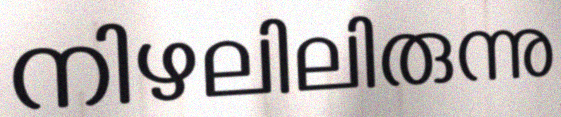
നിഴലിലിരുന്നു